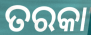
ତରକା